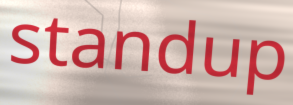
standup